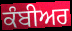
ਕੰਬੀਅਰ